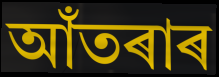
আঁতৰাৰ